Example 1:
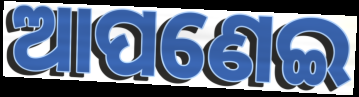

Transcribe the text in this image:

ଆପଣେଇ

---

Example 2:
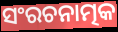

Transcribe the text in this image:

ସଂରଚନାତ୍ମକ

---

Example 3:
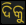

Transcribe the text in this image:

ଦିକୁ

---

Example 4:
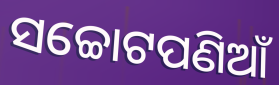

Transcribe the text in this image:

ସଚ୍ଚୋଟପଣିଆଁ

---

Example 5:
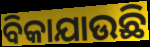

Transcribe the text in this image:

ବିକାଯାଉଛି